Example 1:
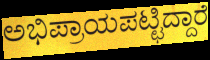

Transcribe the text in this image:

ಅಭಿಪ್ರಾಯಪಟ್ಟಿದ್ದಾರೆ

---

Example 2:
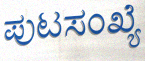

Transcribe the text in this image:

ಪುಟಸಂಖ್ಯೆ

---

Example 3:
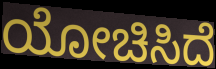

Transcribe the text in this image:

ಯೋಚಿಸಿದೆ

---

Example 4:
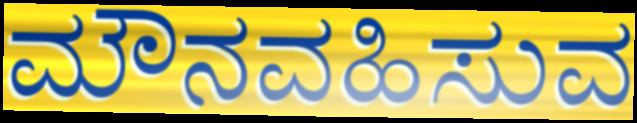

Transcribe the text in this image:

ಮೌನವಹಿಸುವ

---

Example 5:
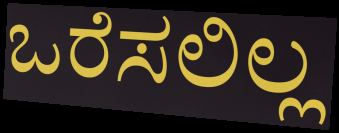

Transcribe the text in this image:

ಒರೆಸಲಿಲ್ಲ